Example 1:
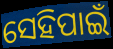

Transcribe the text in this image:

ସେହିପାଇଁ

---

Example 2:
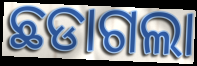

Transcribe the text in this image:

ଛଡାଗଲା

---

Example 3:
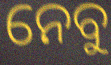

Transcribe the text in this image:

ନେବୁ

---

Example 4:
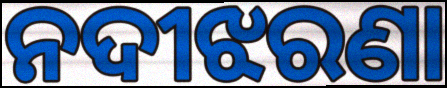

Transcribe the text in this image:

ନଦୀଝରଣା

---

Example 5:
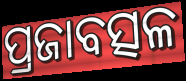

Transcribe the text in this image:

ପ୍ରଜାବତ୍ସଳ